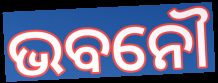
ଭବନୌ